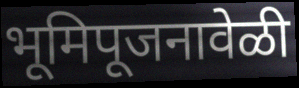
भूमिपूजनावेळी